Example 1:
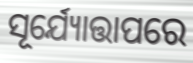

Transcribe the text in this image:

ସୂର୍ଯ୍ୟୋତ୍ତାପରେ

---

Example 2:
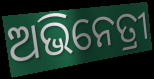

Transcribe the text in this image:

ଅଭିନେତ୍ରୀ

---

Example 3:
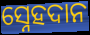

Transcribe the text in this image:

ସ୍ନେହଦାନ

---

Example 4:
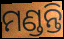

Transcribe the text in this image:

ମଣ୍ଡନ୍ତି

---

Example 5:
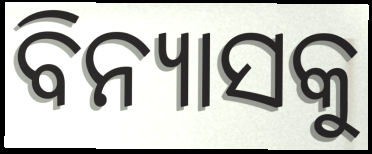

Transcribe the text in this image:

ବିନ୍ୟାସକୁ